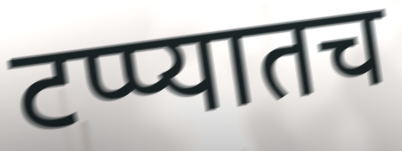
टप्प्यातच